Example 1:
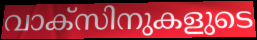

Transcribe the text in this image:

വാക്സിനുകളുടെ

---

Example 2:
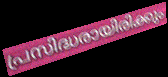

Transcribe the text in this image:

പ്രസിദ്ധരായിരിക്കും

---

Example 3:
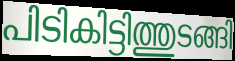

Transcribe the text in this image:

പിടികിട്ടിത്തുടങ്ങി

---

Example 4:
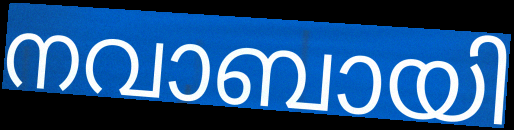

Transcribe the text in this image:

നവാബായി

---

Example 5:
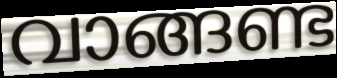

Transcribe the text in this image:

വാങ്ങണ്ട